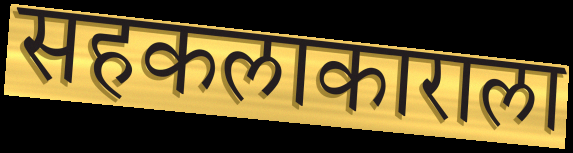
सहकलाकाराला